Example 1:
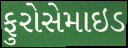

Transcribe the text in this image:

ફુરોસેમાઇડ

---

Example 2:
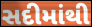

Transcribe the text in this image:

સદીમાંથી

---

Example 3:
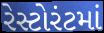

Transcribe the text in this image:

રેસ્ટોરંટમાં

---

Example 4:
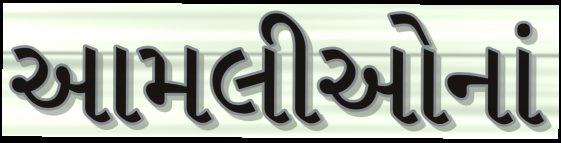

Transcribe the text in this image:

આમલીઓનાં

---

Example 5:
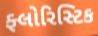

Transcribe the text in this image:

ફ્લોરિસ્ટિક